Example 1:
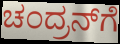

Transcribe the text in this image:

ಚಂದ್ರನ್‌ಗೆ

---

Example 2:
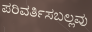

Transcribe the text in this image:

ಪರಿವರ್ತಿಸಬಲ್ಲವು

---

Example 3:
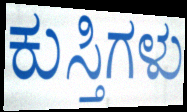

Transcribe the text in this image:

ಕುಸ್ತಿಗಳು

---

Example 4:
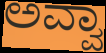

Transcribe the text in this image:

ಅವ್ವಾ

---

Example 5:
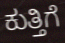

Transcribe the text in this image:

ಕುತ್ತಿಗೆ